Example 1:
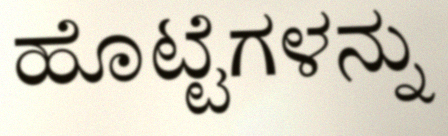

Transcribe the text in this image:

ಹೊಟ್ಟೆಗಳನ್ನು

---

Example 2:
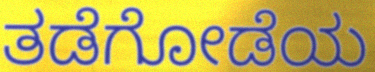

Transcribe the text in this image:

ತಡೆಗೋಡೆಯ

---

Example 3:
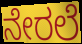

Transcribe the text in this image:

ನೇರಲೆ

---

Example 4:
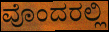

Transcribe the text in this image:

ವೊಂದರಲ್ಲಿ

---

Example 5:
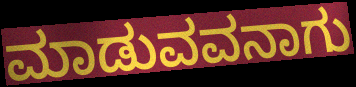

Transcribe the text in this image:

ಮಾಡುವವನಾಗು